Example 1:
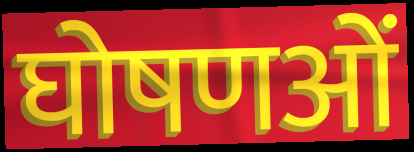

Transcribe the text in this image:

घोषणओं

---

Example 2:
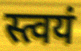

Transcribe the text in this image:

स्त्वयं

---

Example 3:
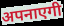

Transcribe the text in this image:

अपनाएगी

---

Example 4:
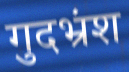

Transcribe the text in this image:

गुदभ्रंश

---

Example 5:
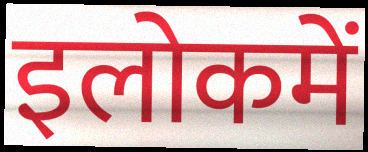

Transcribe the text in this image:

इलोकमें